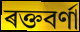
ৰক্তবৰ্ণা